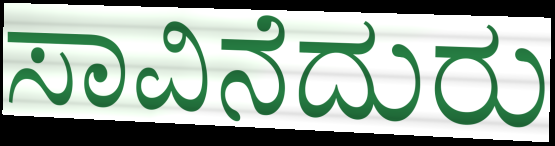
ಸಾವಿನೆದುರು